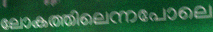
ലോകത്തിലെന്നപോലെ